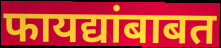
फायद्यांबाबत